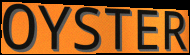
OYSTER